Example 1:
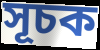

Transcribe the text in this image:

সূচক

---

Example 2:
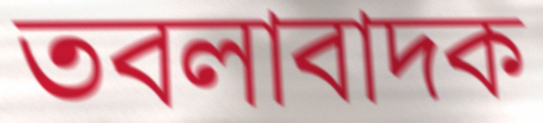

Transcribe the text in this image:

তবলাবাদক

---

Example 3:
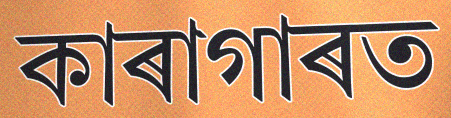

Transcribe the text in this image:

কাৰাগাৰত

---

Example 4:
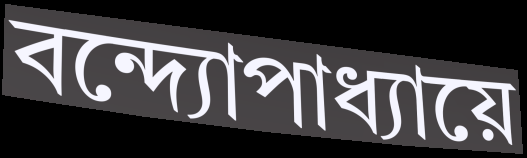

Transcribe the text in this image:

বন্দ্যোপাধ্যায়ে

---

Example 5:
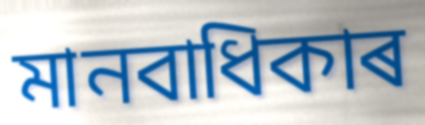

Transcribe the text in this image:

মানবাধিকাৰ